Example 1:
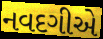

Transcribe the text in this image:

નવદગીએ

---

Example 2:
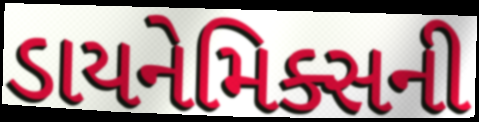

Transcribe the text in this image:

ડાયનેમિક્સની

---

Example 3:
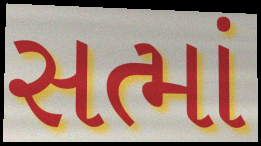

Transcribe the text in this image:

સત્માં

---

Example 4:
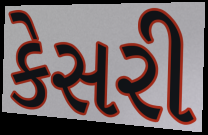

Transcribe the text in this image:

કેસરી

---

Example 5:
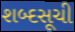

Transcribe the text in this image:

શબ્દસૂચી